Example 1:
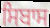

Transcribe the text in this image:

ਸਿਬਾਸ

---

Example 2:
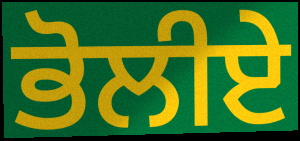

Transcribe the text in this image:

ਭੋਲੀਏ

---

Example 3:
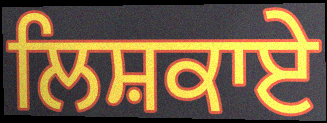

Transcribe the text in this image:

ਲਿਸ਼ਕਾਏ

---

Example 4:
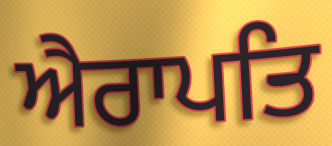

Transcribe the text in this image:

ਐਰਾਪਤਿ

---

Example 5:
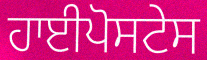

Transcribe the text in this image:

ਹਾਈਪੋਸਟੇਸ